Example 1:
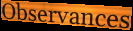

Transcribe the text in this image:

Observances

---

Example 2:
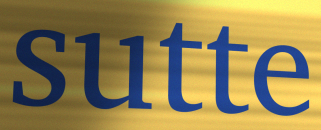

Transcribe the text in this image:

sutte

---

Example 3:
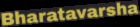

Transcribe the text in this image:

Bharatavarsha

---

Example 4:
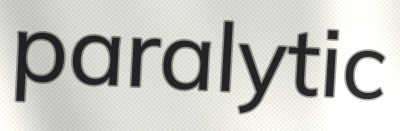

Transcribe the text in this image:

paralytic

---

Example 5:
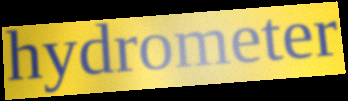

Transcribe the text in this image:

hydrometer